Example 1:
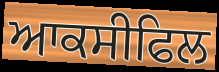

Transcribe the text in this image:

ਆਕਸੀਫਿਲ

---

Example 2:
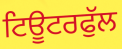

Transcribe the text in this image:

ਟਿਊਟਰਫੁੱਲ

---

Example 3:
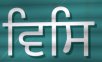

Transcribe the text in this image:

ਵਿਸਿ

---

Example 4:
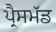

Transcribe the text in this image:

ਪ੍ਰੈਸਮੱਡ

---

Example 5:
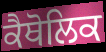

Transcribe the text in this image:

ਕੈਥੋਲਿਕ